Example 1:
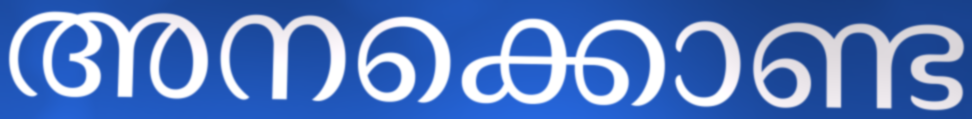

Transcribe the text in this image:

അനക്കൊണ്ട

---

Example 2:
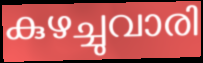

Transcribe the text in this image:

കുഴച്ചുവാരി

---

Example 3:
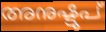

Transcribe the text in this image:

അനുഷ്ടുപ്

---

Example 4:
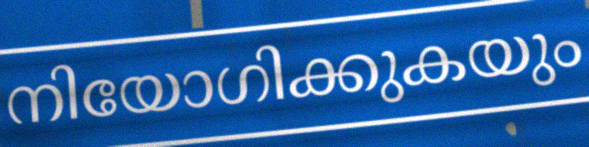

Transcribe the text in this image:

നിയോഗിക്കുകയും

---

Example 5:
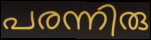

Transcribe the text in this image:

പരന്നിരു